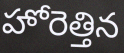
హోరెత్తిన